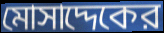
মোসাদ্দেকের